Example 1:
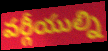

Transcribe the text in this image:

వర్గీయుల్ని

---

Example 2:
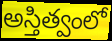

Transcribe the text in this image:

అస్తిత్వంలో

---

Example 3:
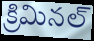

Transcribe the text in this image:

క్రిమినల్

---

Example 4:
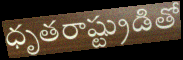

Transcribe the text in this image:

ధృతరాష్ట్రుడితో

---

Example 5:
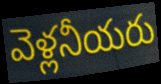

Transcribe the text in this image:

వెళ్లనీయరు